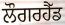
ਲੌਗਰਹੈੱਡ